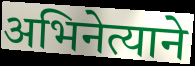
अभिनेत्याने